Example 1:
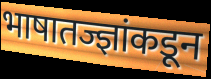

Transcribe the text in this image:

भाषातज्ज्ञांकडून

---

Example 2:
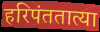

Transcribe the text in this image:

हरिपंततात्या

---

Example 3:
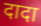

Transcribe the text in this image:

दादा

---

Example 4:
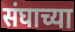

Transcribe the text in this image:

संघाच्या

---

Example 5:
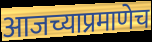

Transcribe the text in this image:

आजच्याप्रमाणेच